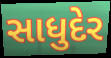
સાધુદેર